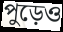
পুড়েও